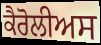
ਕੈਰੋਲੀਅਸ